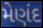
મેણંદ